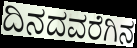
ದಿನದವರೆಗಿನ